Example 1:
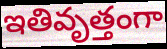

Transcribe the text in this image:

ఇతివృత్తంగా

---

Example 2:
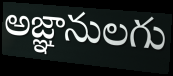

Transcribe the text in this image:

అజ్ఞానులగు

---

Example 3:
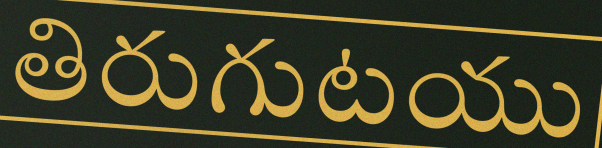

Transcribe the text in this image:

తిరుగుటయు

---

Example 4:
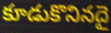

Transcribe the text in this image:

కూడుకొనినదై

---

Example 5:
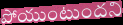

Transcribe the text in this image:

పోయుంటుందని